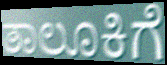
ತಾಲೂಕಿಗೆ